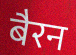
बैरन